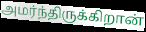
அமர்ந்திருக்கிறான்